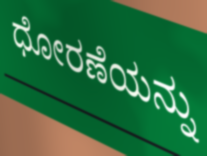
ಧೋರಣೆಯನ್ನು